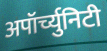
अपॉर्च्युनिटी